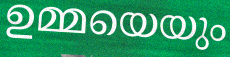
ഉമ്മയെയും